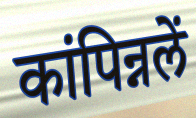
कांपिन्नलें